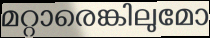
മറ്റാരെങ്കിലുമോ